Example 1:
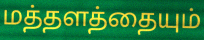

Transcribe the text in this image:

மத்தளத்தையும்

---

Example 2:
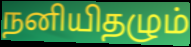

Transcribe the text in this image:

நனியிதழும்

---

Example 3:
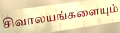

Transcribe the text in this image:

சிவாலயங்களையும்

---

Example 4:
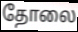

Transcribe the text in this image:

தோலை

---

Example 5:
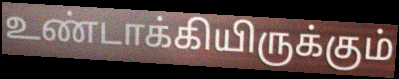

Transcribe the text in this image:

உண்டாக்கியிருக்கும்